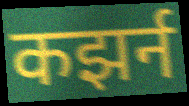
कझर्न